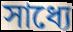
সাধ্যে